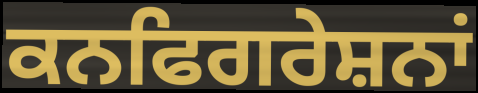
ਕਨਫਿਗਰੇਸ਼ਨਾਂ